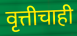
वृत्तीचाही